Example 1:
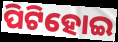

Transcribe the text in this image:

ପିଟିହୋଇ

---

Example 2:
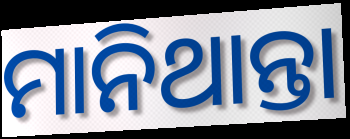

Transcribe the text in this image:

ମାନିଥାନ୍ତା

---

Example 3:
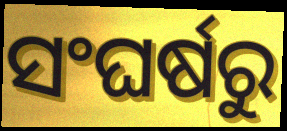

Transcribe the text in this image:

ସଂଘର୍ଷରୁ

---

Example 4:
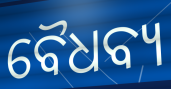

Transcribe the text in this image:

ବୈଧବ୍ୟ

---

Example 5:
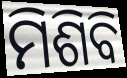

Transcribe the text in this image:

ମିଶିବି